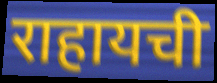
राहायची